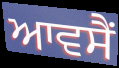
ਆਵਸੈਂ